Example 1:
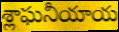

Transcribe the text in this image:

శ్లాఘనీయాయ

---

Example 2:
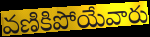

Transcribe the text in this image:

వణికిపోయేవారు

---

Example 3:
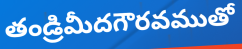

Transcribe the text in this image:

తండ్రిమీదగౌరవముతో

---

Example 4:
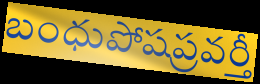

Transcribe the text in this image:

బంధుపోషప్రవర్తీ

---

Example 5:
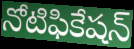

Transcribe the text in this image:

నోటిఫికేషన్